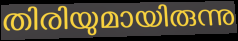
തിരിയുമായിരുന്നു